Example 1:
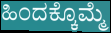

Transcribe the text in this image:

ಹಿಂದಕ್ಕೊಮ್ಮೆ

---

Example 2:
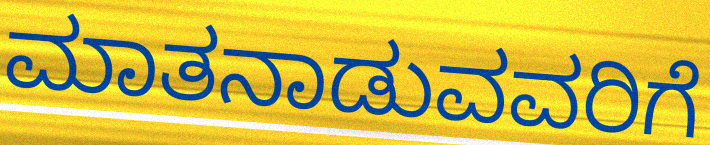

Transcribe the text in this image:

ಮಾತನಾಡುವವರಿಗೆ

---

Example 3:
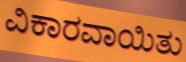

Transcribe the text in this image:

ವಿಕಾರವಾಯಿತು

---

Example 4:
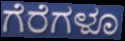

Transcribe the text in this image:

ಗೆರೆಗಳೂ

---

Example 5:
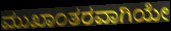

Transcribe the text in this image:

ಮುಖಾಂತರವಾಗಿಯೇ